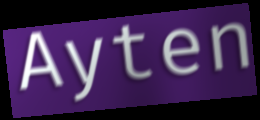
Ayten